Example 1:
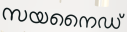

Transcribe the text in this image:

സയനൈഡ്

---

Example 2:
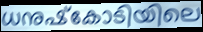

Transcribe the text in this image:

ധനുഷ്‌കോടിയിലെ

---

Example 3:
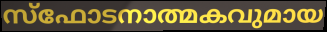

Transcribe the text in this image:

സ്ഫോടനാത്മകവുമായ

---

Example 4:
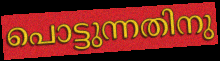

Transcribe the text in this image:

പൊട്ടുന്നതിനു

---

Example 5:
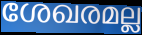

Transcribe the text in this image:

ശേഖരമല്ല